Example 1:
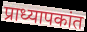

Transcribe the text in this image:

प्राध्यापकांत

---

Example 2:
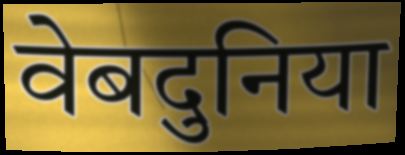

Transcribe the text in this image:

वेबदुनिया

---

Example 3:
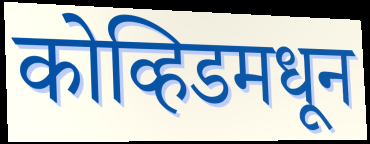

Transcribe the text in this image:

कोव्हिडमधून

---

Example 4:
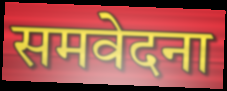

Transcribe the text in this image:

समवेदना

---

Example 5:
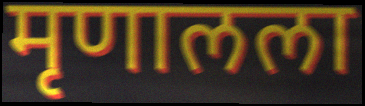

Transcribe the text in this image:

मृणालला